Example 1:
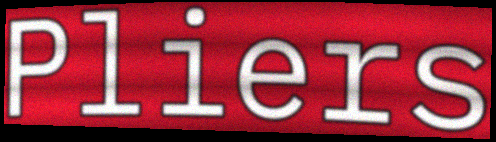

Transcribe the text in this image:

Pliers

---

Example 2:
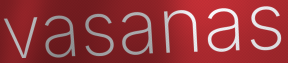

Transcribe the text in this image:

vasanas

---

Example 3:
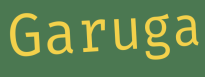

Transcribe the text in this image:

Garuga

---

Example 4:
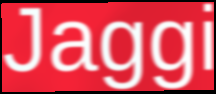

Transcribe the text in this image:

Jaggi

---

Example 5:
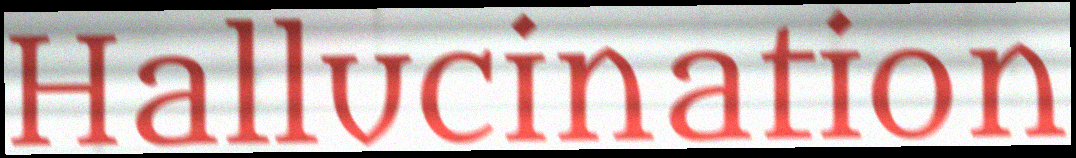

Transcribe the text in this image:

Hallucination